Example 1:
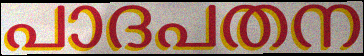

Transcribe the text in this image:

പാദപതന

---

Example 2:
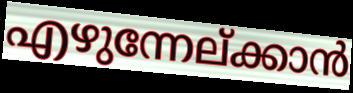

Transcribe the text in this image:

എഴുന്നേല്ക്കാൻ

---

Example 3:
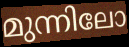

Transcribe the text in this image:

മുന്നിലോ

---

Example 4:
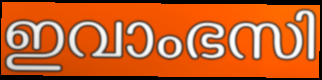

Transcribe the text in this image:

ഇവാംഭസി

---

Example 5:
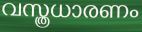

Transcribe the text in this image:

വസ്ത്രധാരണം